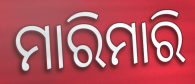
ମାରିମାରି